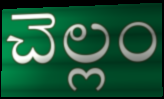
చెల్లం